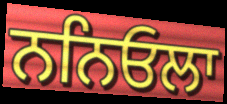
ਨਨਿਓਲਾ